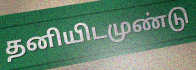
தனியிடமுண்டு